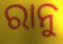
ରାନୁ